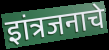
इांत्रजनाचे